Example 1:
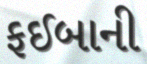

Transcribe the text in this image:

ફઈબાની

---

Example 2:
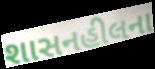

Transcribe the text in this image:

શાસનહીલના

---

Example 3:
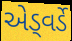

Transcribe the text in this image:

એડ્વર્ડે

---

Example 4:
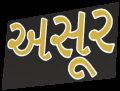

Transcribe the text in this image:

અસૂર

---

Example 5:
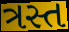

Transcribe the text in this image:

ત્રસ્ત